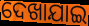
ଦେଖାଯାଇ